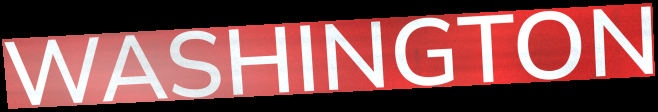
WASHINGTON